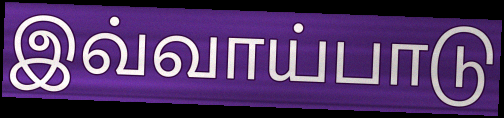
இவ்வாய்பாடு